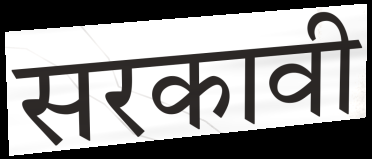
सरकावी